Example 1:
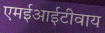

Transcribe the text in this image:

एमईआईटीवाय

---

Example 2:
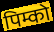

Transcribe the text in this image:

पिम्को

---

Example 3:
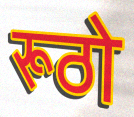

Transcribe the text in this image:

रूठो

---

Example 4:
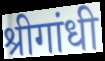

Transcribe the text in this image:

श्रीगांधी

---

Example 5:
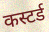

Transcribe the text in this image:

कस्टर्ड